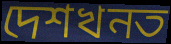
দেশখনত